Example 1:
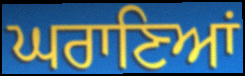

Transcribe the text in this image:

ਘਰਾਣਿਆਂ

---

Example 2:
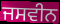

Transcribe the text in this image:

ਜਸਵੀਨ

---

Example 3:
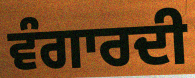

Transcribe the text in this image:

ਵੰਗਾਰਦੀ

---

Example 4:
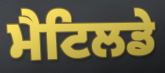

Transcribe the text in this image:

ਮੈਟਿਲਡੇ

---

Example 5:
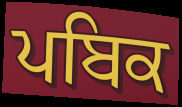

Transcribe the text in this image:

ਪਬਿਕ